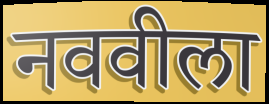
नववीला